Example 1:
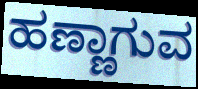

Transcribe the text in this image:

ಹಣ್ಣಾಗುವ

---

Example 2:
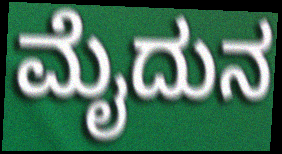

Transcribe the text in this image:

ಮೈದುನ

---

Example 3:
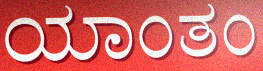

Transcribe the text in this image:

ಯಾಂತಂ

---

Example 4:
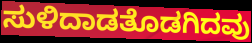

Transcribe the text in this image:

ಸುಳಿದಾಡತೊಡಗಿದವು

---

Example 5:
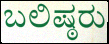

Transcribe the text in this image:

ಬಲಿಷ್ಠರು